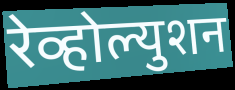
रेव्होल्युशन